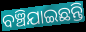
ବଞ୍ଚିଯାଇଛନ୍ତି